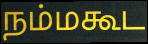
நம்மகூட